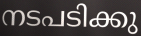
നടപടിക്കു